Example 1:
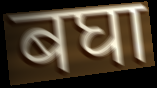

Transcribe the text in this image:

बघा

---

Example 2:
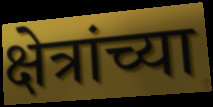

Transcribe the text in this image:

क्षेत्रांच्या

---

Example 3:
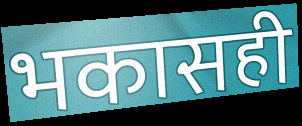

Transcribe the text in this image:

भकासही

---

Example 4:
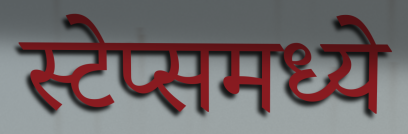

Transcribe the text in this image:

स्टेप्समध्ये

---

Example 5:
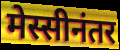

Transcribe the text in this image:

मेस्सीनंतर